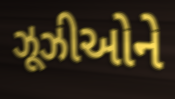
ઝૂઝીઓને